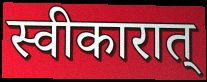
स्वीकारात्